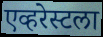
एव्हरेस्टला